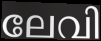
ലേവി